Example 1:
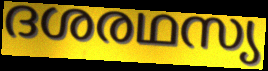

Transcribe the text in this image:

ദശരഥസ്യ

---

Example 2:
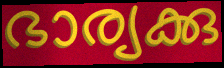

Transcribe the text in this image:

ഭാര്യക്കു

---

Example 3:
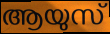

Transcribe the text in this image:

ആയുസ്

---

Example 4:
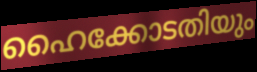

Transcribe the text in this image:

ഹൈക്കോടതിയും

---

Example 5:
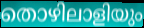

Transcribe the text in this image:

തൊഴിലാളിയും